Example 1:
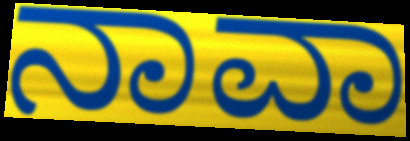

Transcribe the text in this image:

ನಾವಾ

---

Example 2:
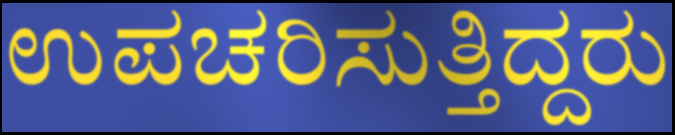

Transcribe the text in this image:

ಉಪಚರಿಸುತ್ತಿದ್ದರು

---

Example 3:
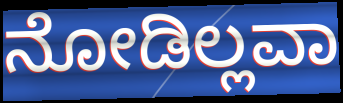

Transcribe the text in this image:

ನೋಡಿಲ್ಲವಾ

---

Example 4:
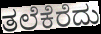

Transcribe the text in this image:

ತಲೆಕೆರೆದು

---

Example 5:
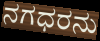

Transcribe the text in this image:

ನಗಧರನು